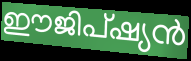
ഈജിപ്ഷ്യൻ